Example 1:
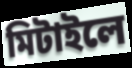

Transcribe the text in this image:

মিটাইলে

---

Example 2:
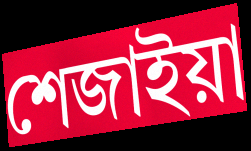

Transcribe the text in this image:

শেজাইয়া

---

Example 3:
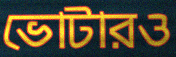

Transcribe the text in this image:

ভোটারও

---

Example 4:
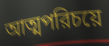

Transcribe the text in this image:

আত্মপরিচয়ে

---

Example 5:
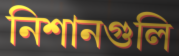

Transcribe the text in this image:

নিশানগুলি